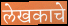
लेखकाचे